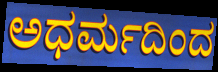
ಅಧರ್ಮದಿಂದ